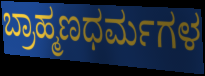
ಬ್ರಾಹ್ಮಣಧರ್ಮಗಳ